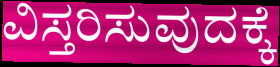
ವಿಸ್ತರಿಸುವುದಕ್ಕೆ